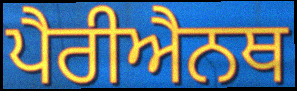
ਪੈਰੀਐਨਥ